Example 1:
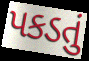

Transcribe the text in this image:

પકડતું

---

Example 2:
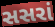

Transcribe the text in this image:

સસરાં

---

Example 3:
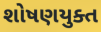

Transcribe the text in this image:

શોષણયુક્ત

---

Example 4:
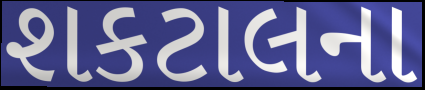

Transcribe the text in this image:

શકટાલના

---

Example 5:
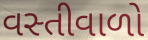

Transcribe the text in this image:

વસ્તીવાળો